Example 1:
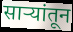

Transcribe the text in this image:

साऱ्यांतून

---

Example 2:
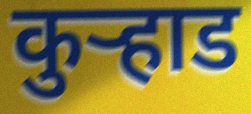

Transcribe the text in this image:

कुर्‍हाड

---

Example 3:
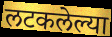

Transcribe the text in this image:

लटकलेल्या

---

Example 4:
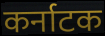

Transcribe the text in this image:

कर्नाटक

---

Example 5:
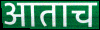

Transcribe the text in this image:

आताच